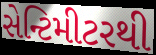
સેન્ટિમીટરથી